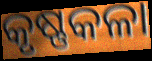
କୃଷ୍ଣକଳା